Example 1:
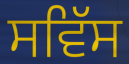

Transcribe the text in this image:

ਸਵਿੱਸ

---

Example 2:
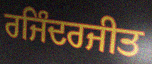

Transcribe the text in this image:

ਰਜਿੰਦਰਜੀਤ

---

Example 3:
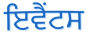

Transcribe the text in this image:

ਇਵੈਂਟਸ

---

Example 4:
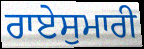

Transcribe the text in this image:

ਰਾਏਸੁਮਾਰੀ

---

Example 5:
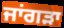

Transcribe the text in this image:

ਜਾਂਗੜਾ